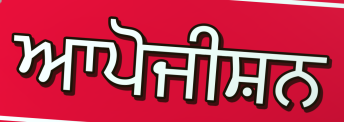
ਆਪੋਜੀਸ਼ਨ